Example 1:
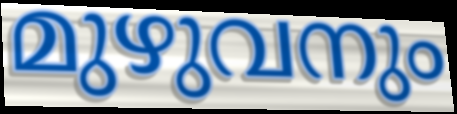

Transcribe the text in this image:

മുഴുവനും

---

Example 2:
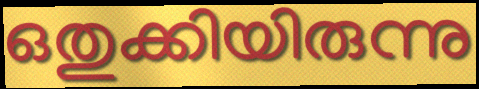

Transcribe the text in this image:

ഒതുക്കിയിരുന്നു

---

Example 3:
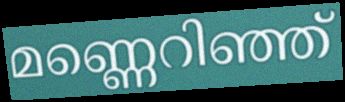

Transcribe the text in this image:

മണ്ണെറിഞ്ഞ്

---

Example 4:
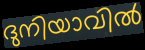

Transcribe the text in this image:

ദുനിയാവിൽ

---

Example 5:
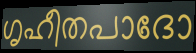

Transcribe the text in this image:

ഗൃഹീതപാദോ